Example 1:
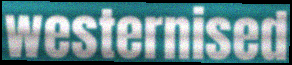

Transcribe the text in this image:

westernised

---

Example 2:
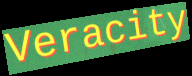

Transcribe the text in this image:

Veracity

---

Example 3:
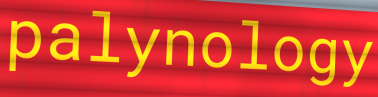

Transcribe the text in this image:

palynology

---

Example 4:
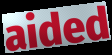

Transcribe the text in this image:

aided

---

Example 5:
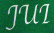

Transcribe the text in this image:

JUI